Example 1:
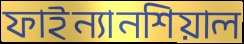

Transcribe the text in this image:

ফাইন্যানশিয়াল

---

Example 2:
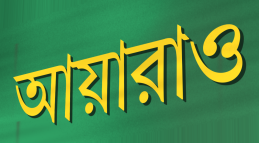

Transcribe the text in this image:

আয়ারাও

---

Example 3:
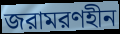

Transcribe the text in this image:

জরামরণহীন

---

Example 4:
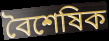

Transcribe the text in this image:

বৈশেষিক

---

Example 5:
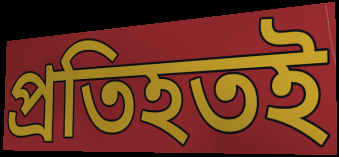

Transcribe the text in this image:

প্রতিহতই